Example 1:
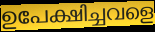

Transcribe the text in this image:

ഉപേക്ഷിച്ചവളെ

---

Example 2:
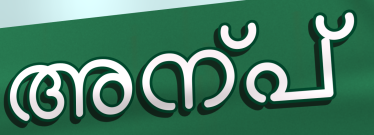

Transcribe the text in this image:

അന്പ്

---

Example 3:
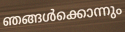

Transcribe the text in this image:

ഞങ്ങൾക്കൊന്നും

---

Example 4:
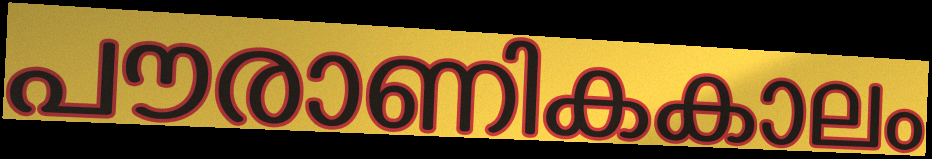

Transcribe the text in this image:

പൗരാണികകാലം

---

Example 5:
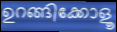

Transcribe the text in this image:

ഉറങ്ങിക്കോളൂ